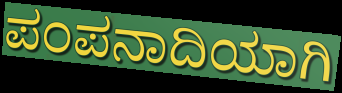
ಪಂಪನಾದಿಯಾಗಿ